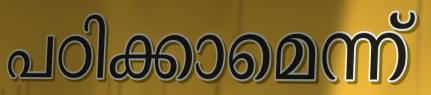
പഠിക്കാമെന്ന്